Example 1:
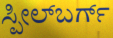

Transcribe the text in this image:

ಸ್ಪೀಲ್‌ಬರ್ಗ್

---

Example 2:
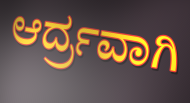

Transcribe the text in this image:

ಆರ್ದ್ರವಾಗಿ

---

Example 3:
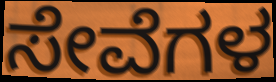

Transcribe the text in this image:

ಸೇವೆಗಳ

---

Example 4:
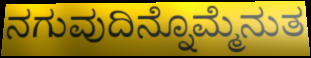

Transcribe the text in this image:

ನಗುವುದಿನ್ನೊಮ್ಮೆನುತ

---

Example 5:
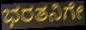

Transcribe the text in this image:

ಭರತನಿಗೇ